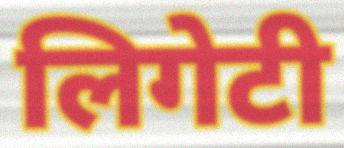
लिगेटी